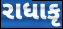
રાધાકૃ